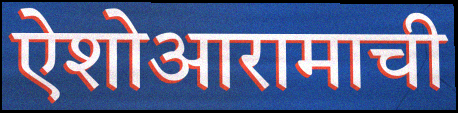
ऐशोआरामाची